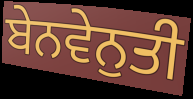
ਬੇਨਵੇਨੁਤੀ